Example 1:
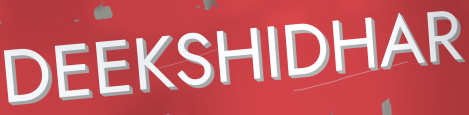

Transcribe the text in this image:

DEEKSHIDHAR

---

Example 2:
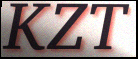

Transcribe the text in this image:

KZT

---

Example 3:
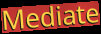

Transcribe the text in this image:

Mediate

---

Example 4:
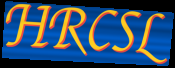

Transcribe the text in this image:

HRCSL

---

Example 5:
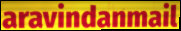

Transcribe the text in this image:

aravindanmail